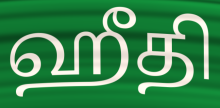
ஹீதி